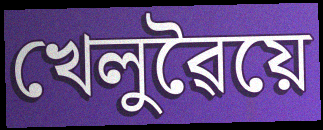
খেলুৱৈয়ে